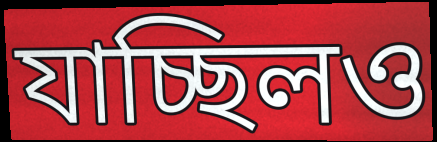
যাচ্ছিলও